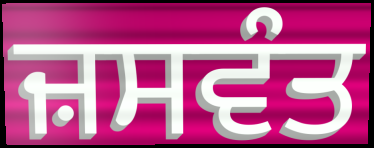
ਜ਼ਸਵੰਤ